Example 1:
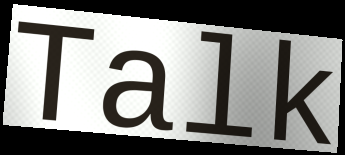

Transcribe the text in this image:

Talk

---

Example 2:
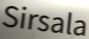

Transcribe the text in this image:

Sirsala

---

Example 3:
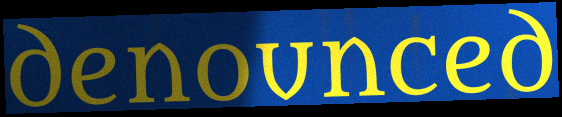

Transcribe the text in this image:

denounced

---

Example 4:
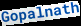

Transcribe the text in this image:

Gopalnath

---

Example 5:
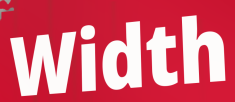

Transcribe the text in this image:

Width